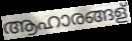
ആഹാരങ്ങള്